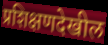
प्रशिक्षणदेखील